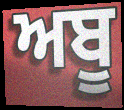
ਅਬੂ